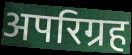
अपरिग्रह